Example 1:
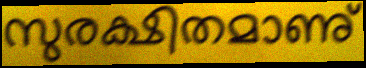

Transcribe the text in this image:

സുരക്ഷിതമാണു്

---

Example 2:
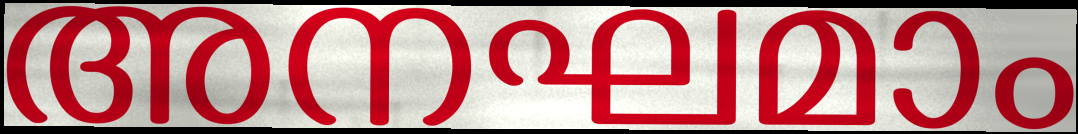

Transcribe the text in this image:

അനഘമാം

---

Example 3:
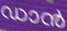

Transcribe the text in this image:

ഡാൻ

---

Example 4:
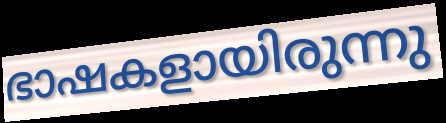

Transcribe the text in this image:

ഭാഷകളായിരുന്നു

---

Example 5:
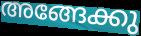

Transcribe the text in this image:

അങ്ങേക്കു